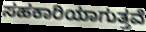
ಸಹಕಾರಿಯಾಗುತ್ತವೆ